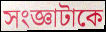
সংজ্ঞাটাকে